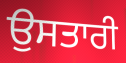
ਉਸਤਾਰੀ